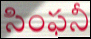
సింఫనీ